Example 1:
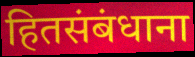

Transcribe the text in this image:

हितसंबंधाना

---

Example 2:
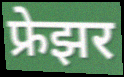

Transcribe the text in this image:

फ्रेझर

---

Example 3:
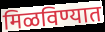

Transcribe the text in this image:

मिळविण्यात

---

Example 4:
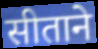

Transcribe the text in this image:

सीताने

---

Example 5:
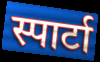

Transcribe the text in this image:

स्पार्टा